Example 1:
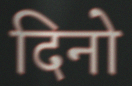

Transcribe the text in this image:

दिनो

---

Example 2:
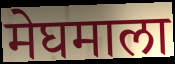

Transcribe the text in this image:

मेघमाला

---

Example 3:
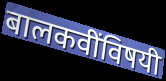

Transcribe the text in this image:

बालकवींविषयी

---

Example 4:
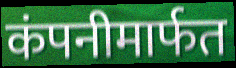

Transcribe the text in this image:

कंपनीमार्फत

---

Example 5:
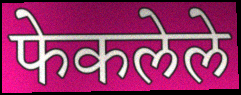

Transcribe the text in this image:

फेकलेले